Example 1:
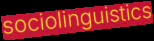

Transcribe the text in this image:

sociolinguistics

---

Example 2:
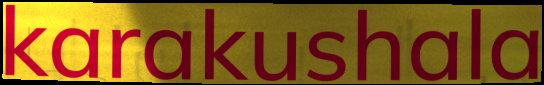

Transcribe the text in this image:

karakushala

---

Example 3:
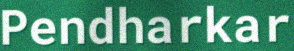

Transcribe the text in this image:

Pendharkar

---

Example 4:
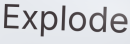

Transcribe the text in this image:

Explode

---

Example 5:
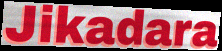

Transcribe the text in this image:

Jikadara